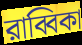
রাব্বিকা